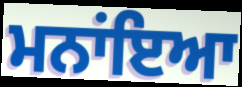
ਮਨਾਂਇਆ